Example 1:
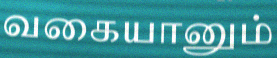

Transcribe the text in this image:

வகையானும்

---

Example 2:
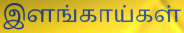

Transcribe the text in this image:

இளங்காய்கள்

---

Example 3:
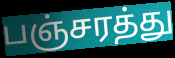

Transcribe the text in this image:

பஞ்சரத்து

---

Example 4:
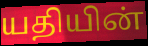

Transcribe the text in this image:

யதியின்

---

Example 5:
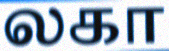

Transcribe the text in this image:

லகா